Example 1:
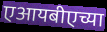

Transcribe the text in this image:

एआयबीएच्या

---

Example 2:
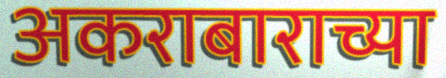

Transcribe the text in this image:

अकराबाराच्या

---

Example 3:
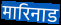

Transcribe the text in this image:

मारिनाड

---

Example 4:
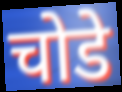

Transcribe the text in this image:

चोडे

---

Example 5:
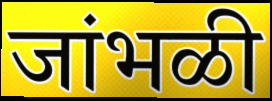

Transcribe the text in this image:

जांभळी